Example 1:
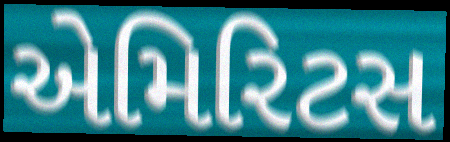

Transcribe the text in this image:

એમિરિટસ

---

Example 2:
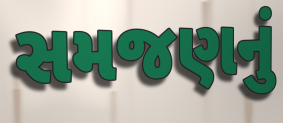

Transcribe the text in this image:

સમજણનું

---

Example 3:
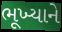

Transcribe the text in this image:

ભૂખ્યાને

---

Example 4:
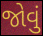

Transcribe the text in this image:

જોવું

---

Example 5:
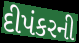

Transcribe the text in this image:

દીપંકરની